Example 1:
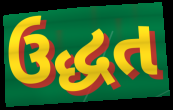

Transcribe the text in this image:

ઉદ્ધત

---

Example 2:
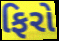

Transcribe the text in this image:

ફિરો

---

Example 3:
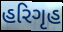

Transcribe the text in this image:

હરિગૃહ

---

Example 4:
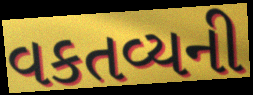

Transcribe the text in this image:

વકતવ્યની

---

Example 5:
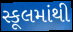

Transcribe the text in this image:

સ્કૂલમાંથી